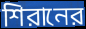
শিরানের